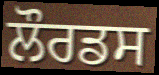
ਲੌਰਡਸ